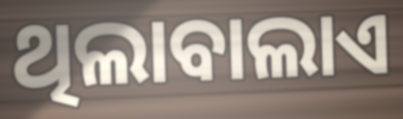
ଥିଲାବାଲାଏ